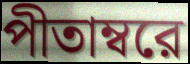
পীতাম্বরে